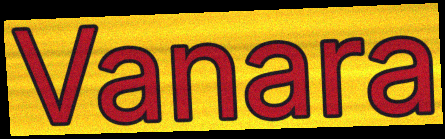
Vanara